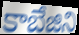
కాబేజిని